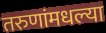
तरुणांमधल्या